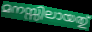
മനസ്സിലായതു്